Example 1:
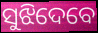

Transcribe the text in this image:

ସୁଝିଦେବେ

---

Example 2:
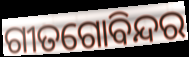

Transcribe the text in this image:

ଗୀତଗୋବିନ୍ଦର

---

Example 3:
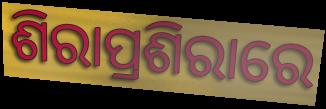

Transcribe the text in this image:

ଶିରାପ୍ରଶିରାରେ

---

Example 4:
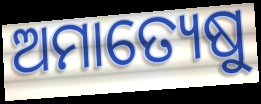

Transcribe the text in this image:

ଅମାତ୍ୟେଷୁ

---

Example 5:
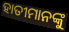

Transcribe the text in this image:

ହାତୀମାନଙ୍କୁ